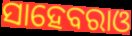
ସାହେବରାଓ